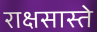
राक्षसास्ते